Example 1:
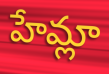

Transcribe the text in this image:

హేమ్లా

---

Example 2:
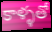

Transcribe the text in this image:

కాళ్ళతో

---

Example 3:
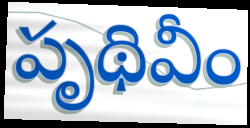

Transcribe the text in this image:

పృథివీం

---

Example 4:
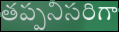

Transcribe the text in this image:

తప్పనిసరిగా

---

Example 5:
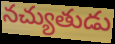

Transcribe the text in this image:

నచ్యుతుడు